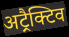
अट्रैक्टिव